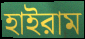
হাইরাম